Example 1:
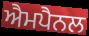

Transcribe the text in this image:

ਐਮਪੈਨਲ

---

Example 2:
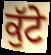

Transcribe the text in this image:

ਕੁੱਟੇ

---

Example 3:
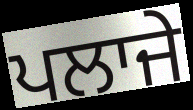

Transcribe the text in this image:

ਪਲਾਜੇ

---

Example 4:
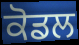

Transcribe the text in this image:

ਕੋਡਲ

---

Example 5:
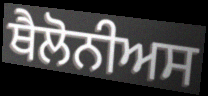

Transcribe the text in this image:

ਥੈਲੋਨੀਅਸ